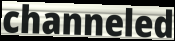
channeled